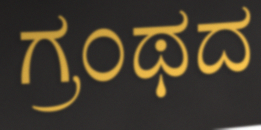
ಗ್ರಂಥದ